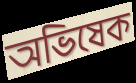
অভিষেক